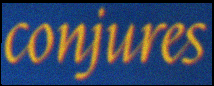
conjures